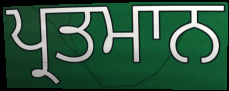
ਪ੍ਰਤਮਾਨ